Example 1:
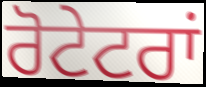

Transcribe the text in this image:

ਰੋਟੇਟਰਾਂ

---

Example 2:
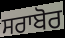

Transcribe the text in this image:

ਸਰਾਬੋਰ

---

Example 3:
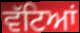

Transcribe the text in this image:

ਵੱਟਿਆਂ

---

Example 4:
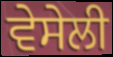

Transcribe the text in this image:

ਵੇਸੇਲੀ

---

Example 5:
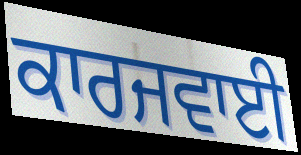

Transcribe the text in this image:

ਕਾਰਜਵਾਈ